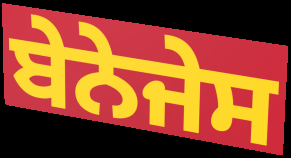
ਬੇਨੇਜੇਸ